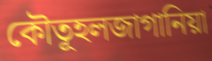
কৌতূহলজাগানিয়া